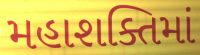
મહાશક્તિમાં